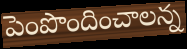
పెంపొందించాలన్న